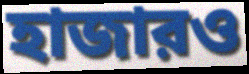
হাজারও